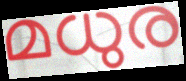
മധുര